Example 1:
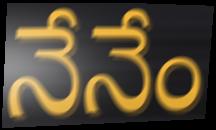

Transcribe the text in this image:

నేనేం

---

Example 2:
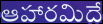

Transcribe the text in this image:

ఆహారమిదే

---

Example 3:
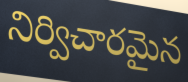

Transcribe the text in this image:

నిర్విచారమైన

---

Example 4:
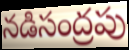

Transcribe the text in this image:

నడిసంద్రపు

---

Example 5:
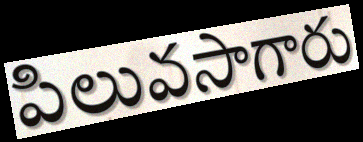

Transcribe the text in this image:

పిలువసాగారు